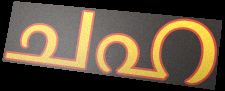
ചഹ